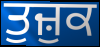
ਤੁਜ਼ੁਕ